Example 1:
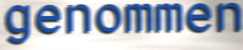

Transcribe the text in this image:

genommen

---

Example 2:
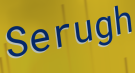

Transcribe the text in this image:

Serugh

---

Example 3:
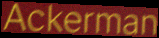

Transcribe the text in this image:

Ackerman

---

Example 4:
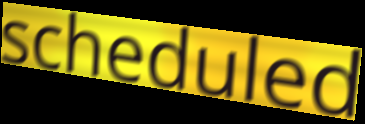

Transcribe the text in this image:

scheduled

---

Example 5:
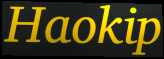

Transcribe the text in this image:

Haokip